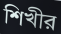
শিখীর